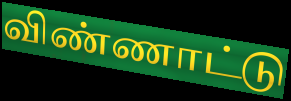
விண்ணாட்டு